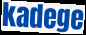
kadege